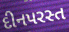
દીનપરસ્ત